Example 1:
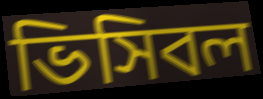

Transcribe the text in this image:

ভিসিবল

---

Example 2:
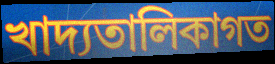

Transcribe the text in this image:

খাদ্যতালিকাগত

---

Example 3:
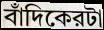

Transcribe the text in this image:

বাঁদিকেরটা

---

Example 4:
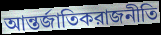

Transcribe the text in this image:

আন্তর্জাতিকরাজনীতি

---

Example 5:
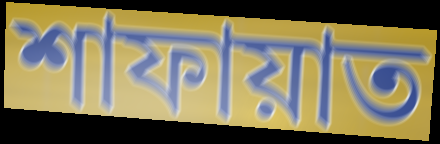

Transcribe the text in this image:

শাফায়াত